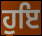
ਹੁਇ